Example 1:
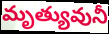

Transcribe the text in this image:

మృత్యువునీ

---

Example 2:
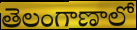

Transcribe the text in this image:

తెలంగాణాలో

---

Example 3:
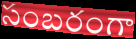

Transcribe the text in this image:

సంబరంగా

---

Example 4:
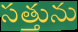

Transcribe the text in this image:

సత్తును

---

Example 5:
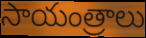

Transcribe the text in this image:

సాయంత్రాలు